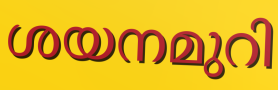
ശയനമുറി